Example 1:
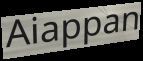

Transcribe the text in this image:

Aiappan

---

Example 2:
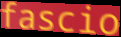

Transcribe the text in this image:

fascio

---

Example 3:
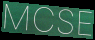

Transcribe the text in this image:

MCSE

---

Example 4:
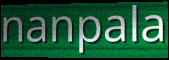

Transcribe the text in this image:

nanpala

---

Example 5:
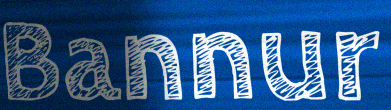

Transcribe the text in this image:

Bannur